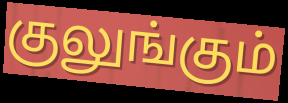
குலுங்கும்